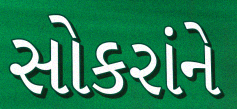
સોકરાંને